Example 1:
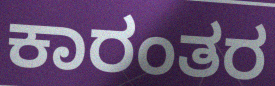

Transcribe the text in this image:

ಕಾರಂತರ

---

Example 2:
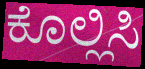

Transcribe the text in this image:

ಕೊಲ್ಲಿಸಿ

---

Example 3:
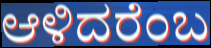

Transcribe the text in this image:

ಆಳಿದರೆಂಬ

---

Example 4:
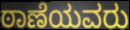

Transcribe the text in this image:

ಠಾಣೆಯವರು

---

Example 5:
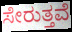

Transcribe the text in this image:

ಸೇರುತ್ತವೆ